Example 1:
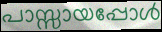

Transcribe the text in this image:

പാസ്സായപ്പോൾ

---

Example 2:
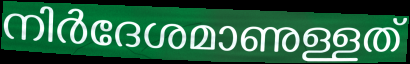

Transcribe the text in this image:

നിർദേശമാണുള്ളത്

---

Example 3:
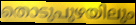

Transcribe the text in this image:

തൊടുപുഴയിലും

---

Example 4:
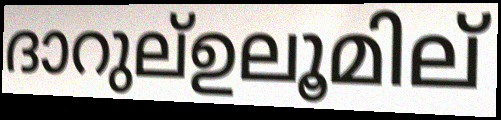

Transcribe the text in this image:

ദാറുല്ഉലൂമില്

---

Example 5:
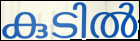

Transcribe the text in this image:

കുടിൽ